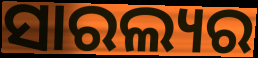
ସାରଲ୍ୟର